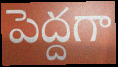
పెద్దగా